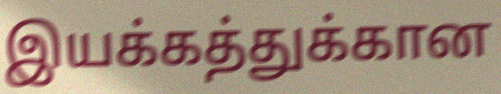
இயக்கத்துக்கான